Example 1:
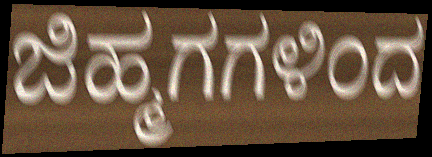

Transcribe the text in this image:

ಜಿಹ್ಮಗಗಳಿಂದ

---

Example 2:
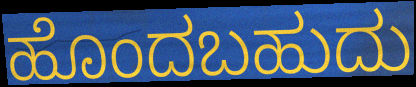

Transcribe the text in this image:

ಹೊಂದಬಹುದು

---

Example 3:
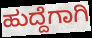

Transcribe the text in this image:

ಹುದ್ದೆಗಾಗಿ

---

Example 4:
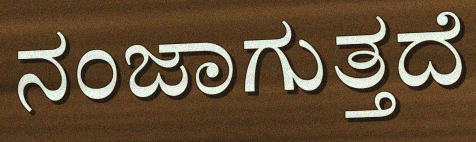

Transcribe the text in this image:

ನಂಜಾಗುತ್ತದೆ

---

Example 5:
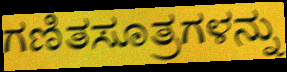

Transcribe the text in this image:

ಗಣಿತಸೂತ್ರಗಳನ್ನು